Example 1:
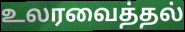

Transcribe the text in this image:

உலரவைத்தல்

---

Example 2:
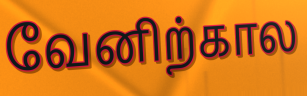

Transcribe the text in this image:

வேனிற்கால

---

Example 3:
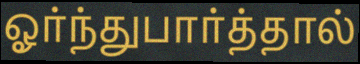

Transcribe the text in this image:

ஓர்ந்துபார்த்தால்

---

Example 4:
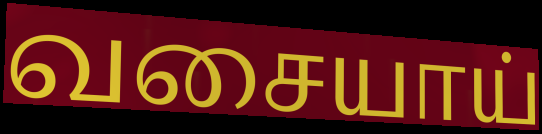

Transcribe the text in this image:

வசையாய்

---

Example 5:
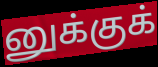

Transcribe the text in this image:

னுக்குக்